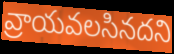
వ్రాయవలసినదని